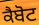
ਕੈਬੋਟ